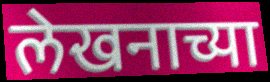
लेखनाच्या